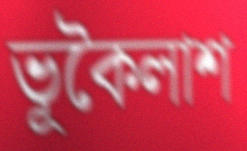
ভূকৈলাশ